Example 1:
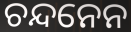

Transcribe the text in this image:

ଚନ୍ଦନେନ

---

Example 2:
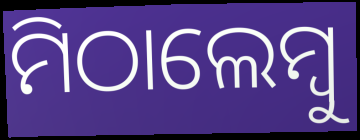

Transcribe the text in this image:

ମିଠାଲେମ୍ବୁ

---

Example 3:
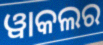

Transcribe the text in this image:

ୱାକଲର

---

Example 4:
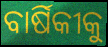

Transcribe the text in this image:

ବାର୍ଷିକୀକୁ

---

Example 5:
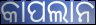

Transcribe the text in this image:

କାପଲାନ